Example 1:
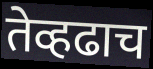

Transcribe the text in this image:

तेव्हढाच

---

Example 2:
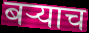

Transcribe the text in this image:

बर्‍याच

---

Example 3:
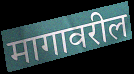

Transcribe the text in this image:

मागावरील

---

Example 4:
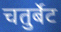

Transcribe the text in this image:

चतुर्बेट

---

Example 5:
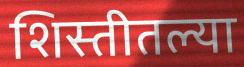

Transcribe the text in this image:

शिस्तीतल्या